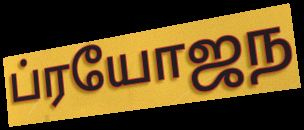
ப்ரயோஜந